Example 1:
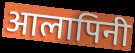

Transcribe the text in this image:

आलापिनी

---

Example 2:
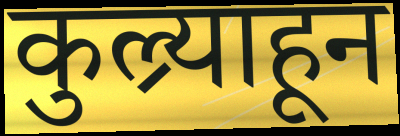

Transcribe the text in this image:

कुल्र्याहून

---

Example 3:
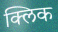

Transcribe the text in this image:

क्लिक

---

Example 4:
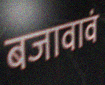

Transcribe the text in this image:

बजावावं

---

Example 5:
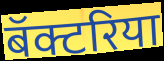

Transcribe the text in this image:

बॅक्टरिया